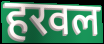
हरवल